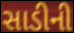
સાડીની